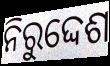
ନିରୁଦ୍ଦେଶ